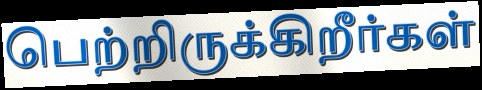
பெற்றிருக்கிறீர்கள்